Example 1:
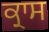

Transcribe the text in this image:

ਕ੍ਰਾਸ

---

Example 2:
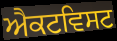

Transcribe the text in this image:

ਐਕਟਵਿਸਟ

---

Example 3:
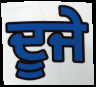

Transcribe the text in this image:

ਦੂਜੇ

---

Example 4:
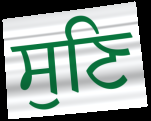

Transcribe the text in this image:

ਸੁਣਿ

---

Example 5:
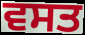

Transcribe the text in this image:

ਵਸਤ